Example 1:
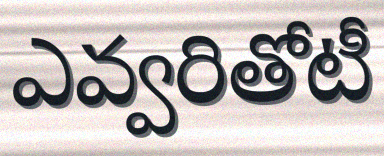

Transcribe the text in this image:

ఎవ్వరితోటీ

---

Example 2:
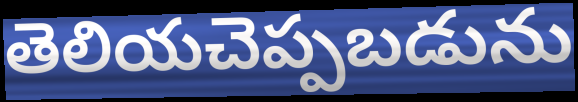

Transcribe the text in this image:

తెలియచెప్పబడును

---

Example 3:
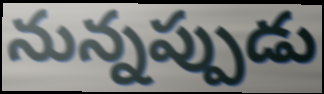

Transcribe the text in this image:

నున్నప్పుడు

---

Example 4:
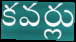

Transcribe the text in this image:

కవర్లు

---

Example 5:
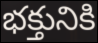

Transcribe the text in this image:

భక్తునికి